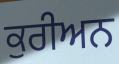
ਕੁਰੀਅਨ